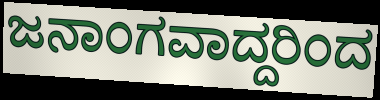
ಜನಾಂಗವಾದ್ದರಿಂದ